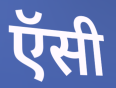
ऍसी